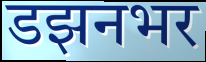
डझनभर